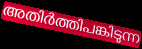
അതിർത്തിപങ്കിടുന്ന